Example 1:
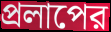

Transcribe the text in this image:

প্রলাপের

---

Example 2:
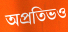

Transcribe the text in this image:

অপ্রতিভও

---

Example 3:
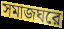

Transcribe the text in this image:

সমাজঘরে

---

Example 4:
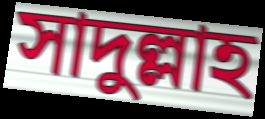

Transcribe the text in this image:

সাদুল্লাহ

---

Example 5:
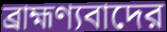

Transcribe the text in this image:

ব্রাহ্মণ্যবাদের